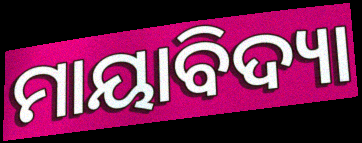
ମାୟାବିଦ୍ୟା